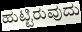
ಹುಟ್ಟಿರುವುದು